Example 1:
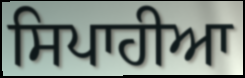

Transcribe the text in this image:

ਸਿਪਾਹੀਆ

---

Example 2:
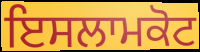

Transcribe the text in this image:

ਇਸਲਾਮਕੋਟ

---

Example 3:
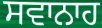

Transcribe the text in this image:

ਸਵਾਨਾਹ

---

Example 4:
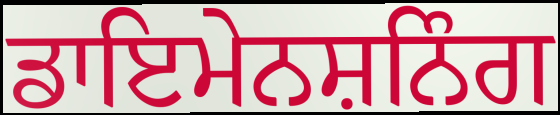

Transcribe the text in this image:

ਡਾਇਮੇਨਸ਼ਨਿੰਗ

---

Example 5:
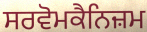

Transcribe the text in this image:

ਸਰਵੋਮਕੈਨਿਜ਼ਮ